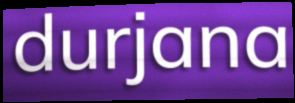
durjana